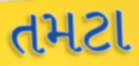
તમટા